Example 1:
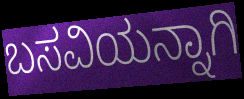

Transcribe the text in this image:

ಬಸವಿಯನ್ನಾಗಿ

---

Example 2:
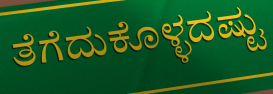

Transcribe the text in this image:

ತೆಗೆದುಕೊಳ್ಳದಷ್ಟು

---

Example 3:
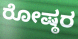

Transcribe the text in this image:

ರೋಷ್ಠರ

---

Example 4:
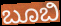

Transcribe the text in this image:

ಬೂಬಿ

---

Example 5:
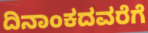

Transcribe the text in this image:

ದಿನಾಂಕದವರೆಗೆ